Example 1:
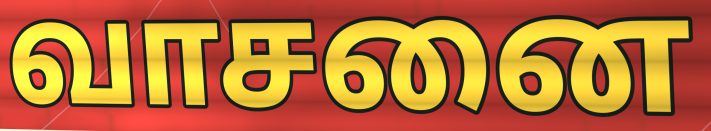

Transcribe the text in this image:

வாசனை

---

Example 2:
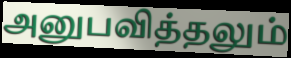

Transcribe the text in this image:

அனுபவித்தலும்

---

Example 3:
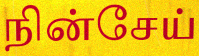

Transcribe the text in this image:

நின்சேய்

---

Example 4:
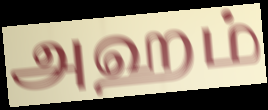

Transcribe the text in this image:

அஹம்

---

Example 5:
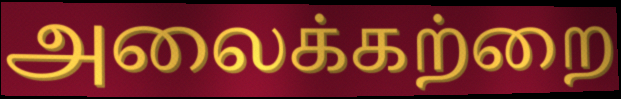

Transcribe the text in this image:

அலைக்கற்றை